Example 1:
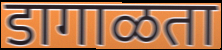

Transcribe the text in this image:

डागाळता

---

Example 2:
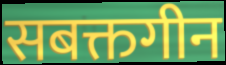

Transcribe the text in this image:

सबक्तगीन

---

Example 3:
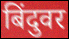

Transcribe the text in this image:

बिंदुवर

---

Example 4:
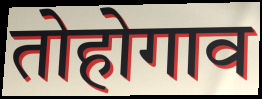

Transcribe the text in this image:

तोहोगाव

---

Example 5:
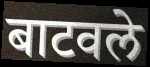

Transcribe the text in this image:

बाटवले